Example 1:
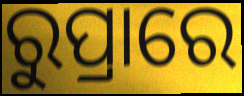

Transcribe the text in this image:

ରୁପ୍ରାରେ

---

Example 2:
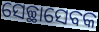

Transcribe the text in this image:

ସେଚ୍ଛାସେବକ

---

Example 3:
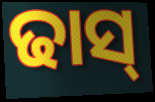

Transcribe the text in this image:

ଢାସ୍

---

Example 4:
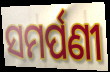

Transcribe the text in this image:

ସମର୍ପଣୀ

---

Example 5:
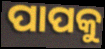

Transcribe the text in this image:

ପାପକୁ